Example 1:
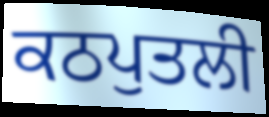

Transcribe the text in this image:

ਕਠਪੁਤਲੀ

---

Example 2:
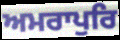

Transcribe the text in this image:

ਅਮਰਾਪੁਰਿ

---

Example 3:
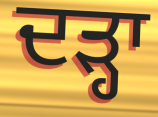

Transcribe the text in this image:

ਦੜ੍ਹਾ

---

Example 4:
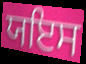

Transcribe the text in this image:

ਯਇਸ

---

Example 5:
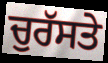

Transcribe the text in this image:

ਚੁਰੱਸਤੇ